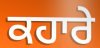
ਕਹਾਰੇ